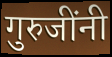
गुरुजींनी